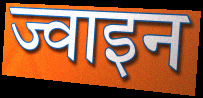
ज्‍वाइन